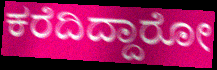
ಕರೆದಿದ್ದಾರೋ